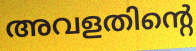
അവളതിന്റെ